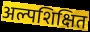
अल्पशिक्षित